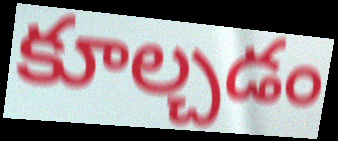
కూల్చడం